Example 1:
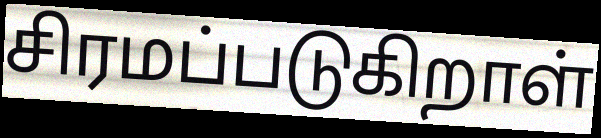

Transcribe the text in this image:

சிரமப்படுகிறாள்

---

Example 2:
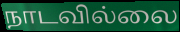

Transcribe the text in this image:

நாடவில்லை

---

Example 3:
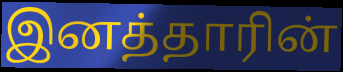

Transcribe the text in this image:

இனத்தாரின்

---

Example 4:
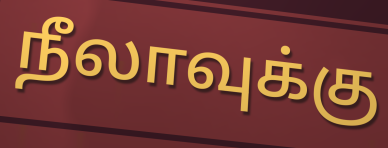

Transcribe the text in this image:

நீலாவுக்கு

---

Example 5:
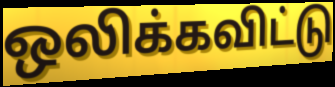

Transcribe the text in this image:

ஒலிக்கவிட்டு